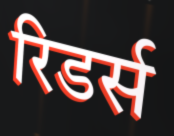
रिडर्स